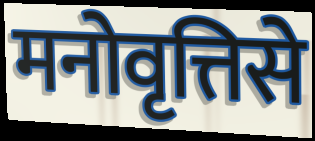
मनोवृत्तिसे